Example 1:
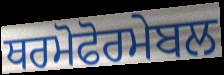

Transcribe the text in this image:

ਥਰਮੋਫੋਰਮੇਬਲ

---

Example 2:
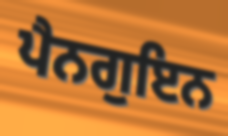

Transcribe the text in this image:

ਪੈਨਗੁਇਨ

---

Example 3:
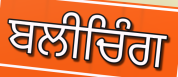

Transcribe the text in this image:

ਬਲੀਚਿੰਗ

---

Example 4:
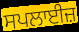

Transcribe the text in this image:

ਸਪਲਾਈਜ਼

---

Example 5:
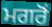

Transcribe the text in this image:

ਮਗਰੋਂ